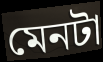
মেনটা